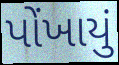
પોંખાયું